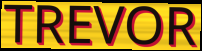
TREVOR